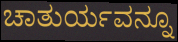
ಚಾತುರ್ಯವನ್ನೂ